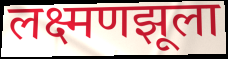
लक्ष्मणझूला